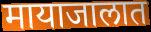
मायाजालात